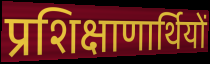
प्रशिक्षाणार्थियों